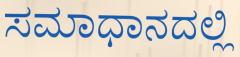
ಸಮಾಧಾನದಲ್ಲಿ